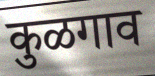
कुळगाव